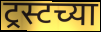
ट्रस्टच्या